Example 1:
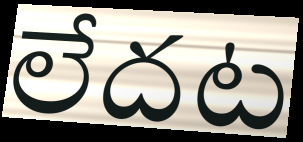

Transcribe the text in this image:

లేదట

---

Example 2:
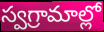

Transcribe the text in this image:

స్వగ్రామాల్లో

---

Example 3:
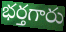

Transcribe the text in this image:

భర్తగారు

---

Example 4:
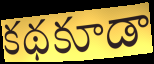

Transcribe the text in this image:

కథకూడా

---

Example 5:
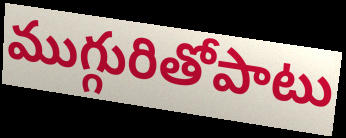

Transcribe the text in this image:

ముగ్గురితోపాటు